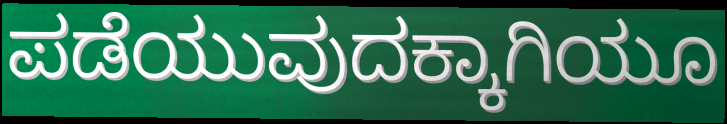
ಪಡೆಯುವುದಕ್ಕಾಗಿಯೂ